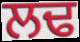
ਲਢ